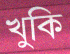
খুকি